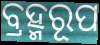
ବ୍ରହ୍ମରୂପ